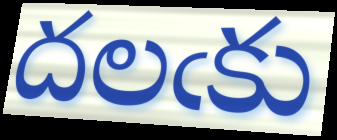
దలఁకు